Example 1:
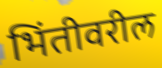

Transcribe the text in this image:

भिंतीवरील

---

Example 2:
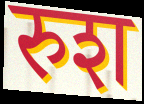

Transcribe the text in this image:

रुश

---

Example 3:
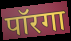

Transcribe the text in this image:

पॉरगा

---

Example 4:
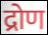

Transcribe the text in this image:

द्रोण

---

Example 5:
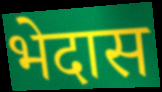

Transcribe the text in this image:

भेदास